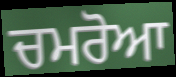
ਚਮਰੋਆ